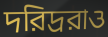
দরিদ্ররাও